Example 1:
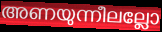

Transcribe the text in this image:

അണയുന്നീലല്ലോ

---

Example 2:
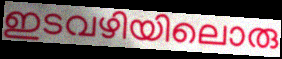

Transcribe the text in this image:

ഇടവഴിയിലൊരു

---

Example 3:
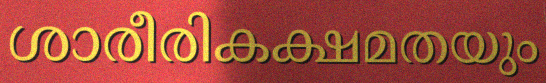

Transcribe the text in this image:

ശാരീരികക്ഷമതയും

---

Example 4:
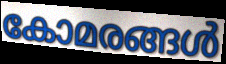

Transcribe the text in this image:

കോമരങ്ങൾ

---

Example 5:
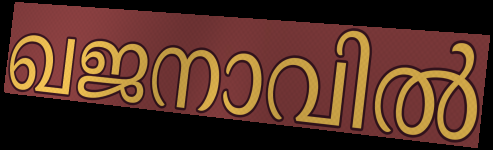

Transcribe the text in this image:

ഖജനാവിൽ